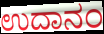
ಉದಾನಂ